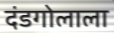
दंडगोलाला